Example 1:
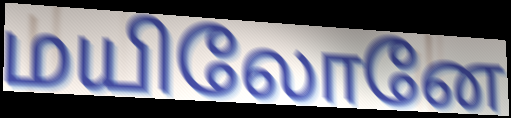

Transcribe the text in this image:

மயிலோனே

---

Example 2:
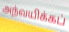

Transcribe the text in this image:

அந்வயிக்கப்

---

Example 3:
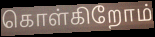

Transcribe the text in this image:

கொள்கிறோம்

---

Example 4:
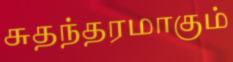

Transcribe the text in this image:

சுதந்தரமாகும்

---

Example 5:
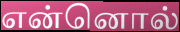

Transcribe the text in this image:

என்னொல்